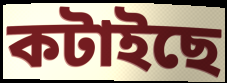
কটাইছে